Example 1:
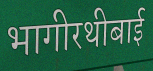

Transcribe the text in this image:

भागीरथीबाई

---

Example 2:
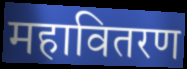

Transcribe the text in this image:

महावितरण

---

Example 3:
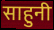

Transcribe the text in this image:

साहुनी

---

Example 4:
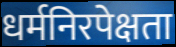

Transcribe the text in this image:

धर्मनिरपेक्षता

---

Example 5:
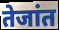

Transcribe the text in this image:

तेजांत